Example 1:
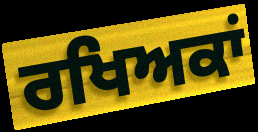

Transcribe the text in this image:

ਰਖਿਅਕਾਂ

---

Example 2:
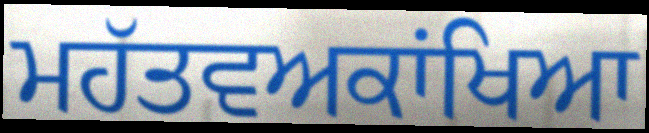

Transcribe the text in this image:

ਮਹੱਤਵਅਕਾਂਖਿਆ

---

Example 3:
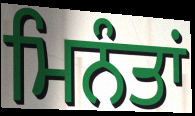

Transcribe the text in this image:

ਮਿਨੰਤਾਂ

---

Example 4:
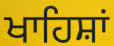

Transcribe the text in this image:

ਖਾਹਿਸ਼ਾਂ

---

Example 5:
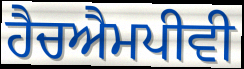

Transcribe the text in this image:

ਹੈਚਐਮਪੀਵੀ